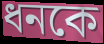
ধনকে